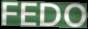
FEDO